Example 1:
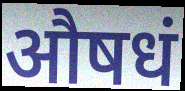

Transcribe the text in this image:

औषधं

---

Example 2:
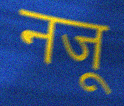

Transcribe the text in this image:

नजू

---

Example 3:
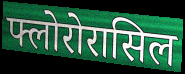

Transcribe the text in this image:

फ्लोरोरासिल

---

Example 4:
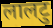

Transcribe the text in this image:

लालटु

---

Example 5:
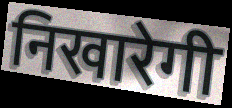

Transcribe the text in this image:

निखारेगी